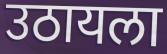
उठायला